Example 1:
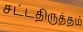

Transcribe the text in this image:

சட்டதிருத்தம்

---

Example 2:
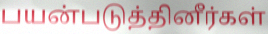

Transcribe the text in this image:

பயன்படுத்தினீர்கள்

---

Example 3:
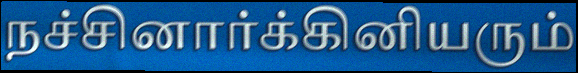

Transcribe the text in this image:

நச்சினார்க்கினியரும்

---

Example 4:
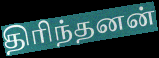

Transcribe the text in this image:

திரிந்தனன்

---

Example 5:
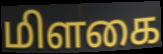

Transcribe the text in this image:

மிளகை